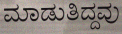
ಮಾಡುತಿದ್ದವು